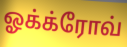
ஓக்க்ரோவ்